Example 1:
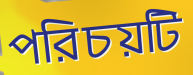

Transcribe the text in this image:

পরিচয়টি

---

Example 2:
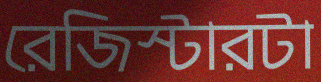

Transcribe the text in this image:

রেজিস্টারটা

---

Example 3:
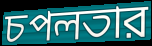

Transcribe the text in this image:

চপলতার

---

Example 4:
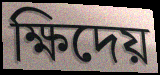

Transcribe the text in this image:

ক্ষিদেয়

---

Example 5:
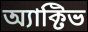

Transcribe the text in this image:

অ্যাক্টিভ